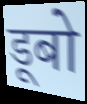
डूबो